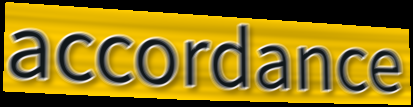
accordance